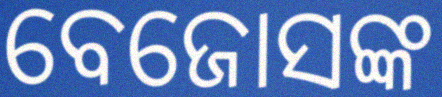
ବେଜୋସଙ୍କ